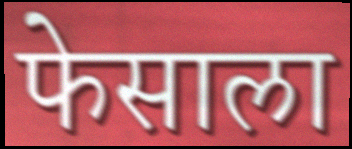
फेसाला